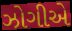
ઝોગીએ